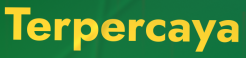
Terpercaya